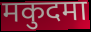
मकुदमा